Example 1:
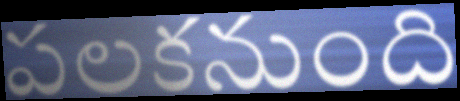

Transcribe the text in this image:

పలకనుంది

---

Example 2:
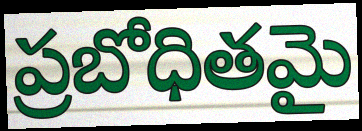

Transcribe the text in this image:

ప్రబోధితమై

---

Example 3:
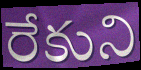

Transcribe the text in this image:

రేకుని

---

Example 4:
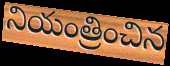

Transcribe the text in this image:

నియంత్రించిన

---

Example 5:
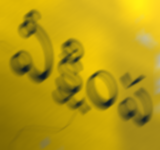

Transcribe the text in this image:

వీక్షింప